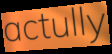
actully